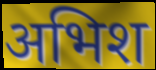
अभिश